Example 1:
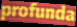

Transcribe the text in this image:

profunda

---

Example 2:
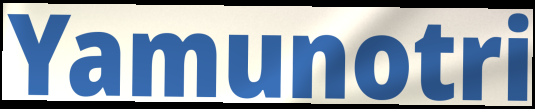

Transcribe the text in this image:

Yamunotri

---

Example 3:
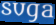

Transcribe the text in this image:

suga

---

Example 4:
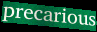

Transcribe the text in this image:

precarious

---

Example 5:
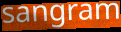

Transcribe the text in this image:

sangram